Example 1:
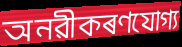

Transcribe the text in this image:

অনৱীকৰণযোগ্য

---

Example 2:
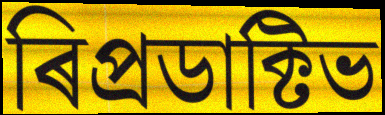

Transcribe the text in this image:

ৰিপ্ৰডাক্টিভ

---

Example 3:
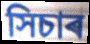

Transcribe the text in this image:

সিচাৰ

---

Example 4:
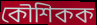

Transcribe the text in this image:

কৌশিকক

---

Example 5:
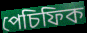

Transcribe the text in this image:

পেচিফিক